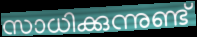
സാധിക്കുന്നുണ്ട്